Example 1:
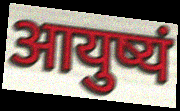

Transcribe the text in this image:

आयुष्यं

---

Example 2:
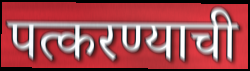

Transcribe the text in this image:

पत्करण्याची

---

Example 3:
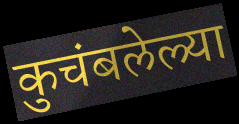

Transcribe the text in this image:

कुचंबलेल्या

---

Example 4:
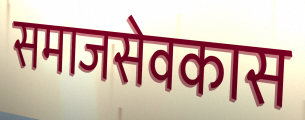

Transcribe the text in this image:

समाजसेवकास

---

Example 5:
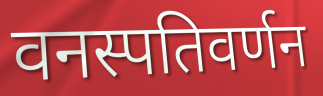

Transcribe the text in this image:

वनस्पतिवर्णन